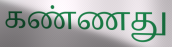
கண்ணது